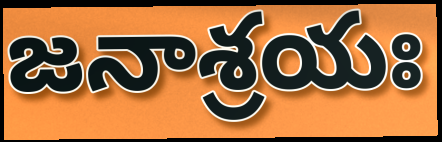
జనాశ్రయః